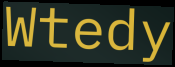
Wtedy